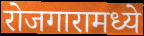
रोजगारामध्ये